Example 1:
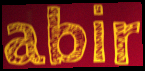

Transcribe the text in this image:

abir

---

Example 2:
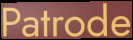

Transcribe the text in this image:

Patrode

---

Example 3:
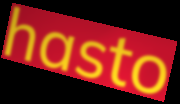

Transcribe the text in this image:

hasto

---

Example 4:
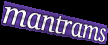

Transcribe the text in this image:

mantrams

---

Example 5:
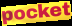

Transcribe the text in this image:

pocket